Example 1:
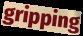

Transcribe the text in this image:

gripping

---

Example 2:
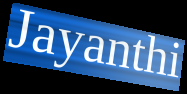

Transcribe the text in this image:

Jayanthi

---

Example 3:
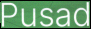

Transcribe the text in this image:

Pusad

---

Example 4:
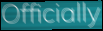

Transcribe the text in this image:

Officially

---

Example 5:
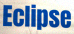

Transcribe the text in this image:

Eclipse